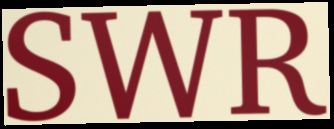
SWR